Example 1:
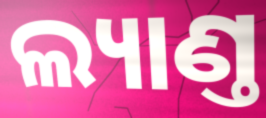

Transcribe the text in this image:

ଲ୍ୟାଣ୍ତ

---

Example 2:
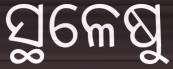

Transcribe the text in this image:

ସ୍ଥଳେଷୁ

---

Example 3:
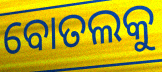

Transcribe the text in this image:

ବୋତଲକୁ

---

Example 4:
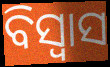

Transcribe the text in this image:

ବିସ୍ବାସ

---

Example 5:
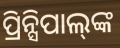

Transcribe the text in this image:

ପ୍ରିନ୍ସିପାଲ୍‍ଙ୍କ